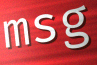
msg